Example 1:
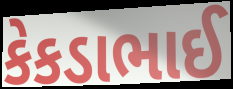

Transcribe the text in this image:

કેકડાભાઈ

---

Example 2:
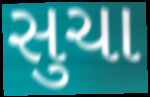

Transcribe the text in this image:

સુચા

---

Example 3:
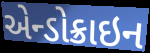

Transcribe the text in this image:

એન્ડોક્રાઇન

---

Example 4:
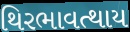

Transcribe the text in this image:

થિરભાવત્થાય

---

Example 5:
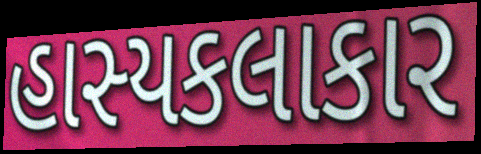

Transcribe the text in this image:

હાસ્યકલાકાર